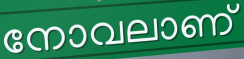
നോവലാണ്